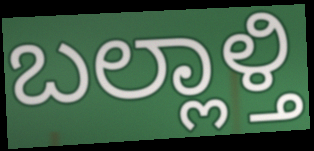
ಬಲ್ಲಾಳ್ತಿ